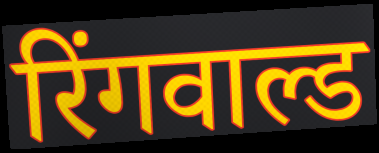
रिंगवाल्ड